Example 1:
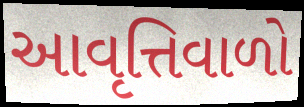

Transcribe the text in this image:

આવૃત્તિવાળો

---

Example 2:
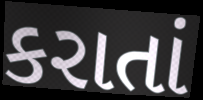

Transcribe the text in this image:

કરાતાં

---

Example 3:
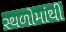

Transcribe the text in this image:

સ્થળોમાંથી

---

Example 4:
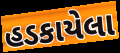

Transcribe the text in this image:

હડકાયેલા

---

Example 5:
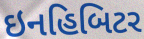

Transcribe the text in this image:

ઇનહિબિટર